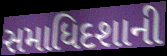
સમાધિદશાની